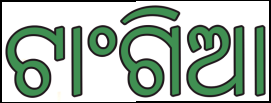
ଟାଂଗିଆ